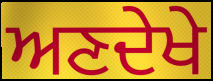
ਅਣਦੇਖੇ